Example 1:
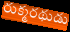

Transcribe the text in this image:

రుక్మరథుడు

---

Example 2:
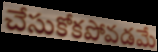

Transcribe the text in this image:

చేసుకోకపోవడమే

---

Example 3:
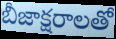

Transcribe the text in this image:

బీజాక్షరాలతో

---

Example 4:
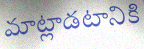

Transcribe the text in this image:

మాట్లాడటానికి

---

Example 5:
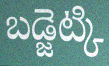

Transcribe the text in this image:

బడ్జెట్కి